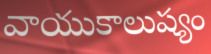
వాయుకాలుష్యం